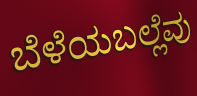
ಬೆಳೆಯಬಲ್ಲೆವು